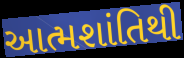
આત્મશાંતિથી